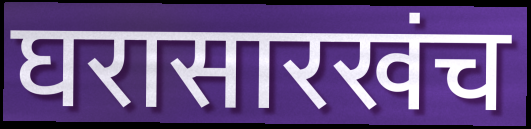
घरासारखंच